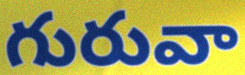
గురువా